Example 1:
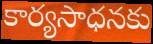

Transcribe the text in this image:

కార్యసాధనకు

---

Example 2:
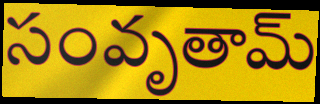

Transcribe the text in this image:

సంవృతామ్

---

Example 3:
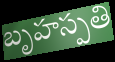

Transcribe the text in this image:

బృహస్పతి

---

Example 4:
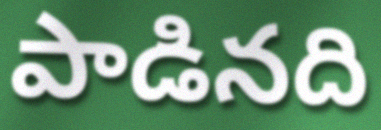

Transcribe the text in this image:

పాడినది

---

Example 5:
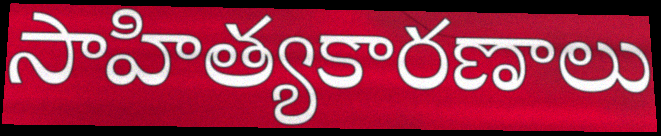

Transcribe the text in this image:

సాహిత్యకారణాలు